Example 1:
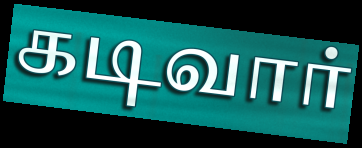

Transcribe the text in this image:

கடிவார்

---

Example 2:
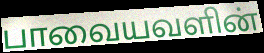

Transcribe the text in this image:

பாவையவளின்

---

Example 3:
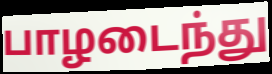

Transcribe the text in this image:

பாழடைந்து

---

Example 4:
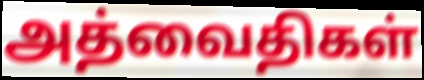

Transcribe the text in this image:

அத்வைதிகள்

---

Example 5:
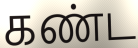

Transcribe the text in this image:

கண்ட